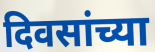
दिवसांच्या